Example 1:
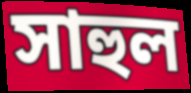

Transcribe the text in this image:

সাহুল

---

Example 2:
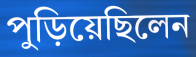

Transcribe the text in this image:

পুড়িয়েছিলেন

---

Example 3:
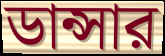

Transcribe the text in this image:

ডান্সার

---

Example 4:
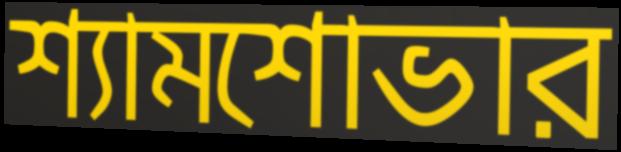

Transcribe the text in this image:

শ্যামশোভার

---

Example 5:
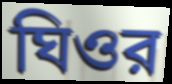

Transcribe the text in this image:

ঘিওর